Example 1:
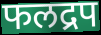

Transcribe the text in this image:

फलद्रप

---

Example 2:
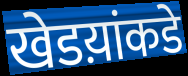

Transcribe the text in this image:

खेडय़ांकडे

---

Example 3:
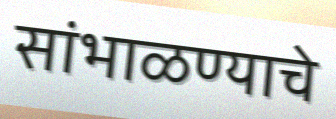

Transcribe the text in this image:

सांभाळण्याचे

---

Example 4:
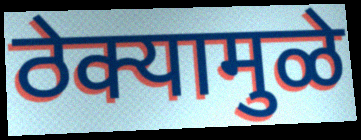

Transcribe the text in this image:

ठेक्यामुळे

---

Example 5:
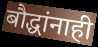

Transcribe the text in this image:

बौद्धांनाही